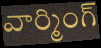
వార్మింగ్